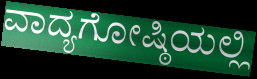
ವಾದ್ಯಗೋಷ್ಠಿಯಲ್ಲಿ